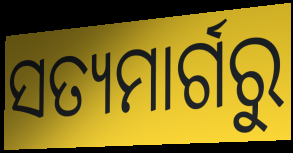
ସତ୍ୟମାର୍ଗରୁ